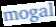
mogal